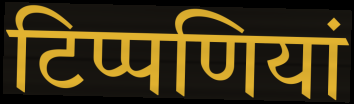
टिप्‍पणियां